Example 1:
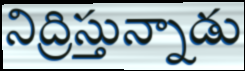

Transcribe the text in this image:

నిద్రిస్తున్నాడు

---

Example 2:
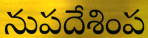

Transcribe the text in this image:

నుపదేశింప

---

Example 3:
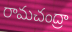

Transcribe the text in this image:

రామచంద్రా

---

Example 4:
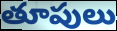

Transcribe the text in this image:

తూపులు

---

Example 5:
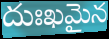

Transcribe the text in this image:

దుఃఖమైన